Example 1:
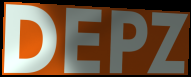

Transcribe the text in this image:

DEPZ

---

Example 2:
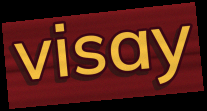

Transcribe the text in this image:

visay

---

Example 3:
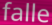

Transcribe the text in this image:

falle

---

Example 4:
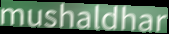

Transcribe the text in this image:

mushaldhar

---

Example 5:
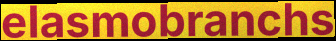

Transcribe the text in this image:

elasmobranchs